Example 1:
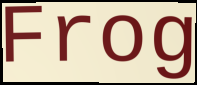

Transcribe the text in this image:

Frog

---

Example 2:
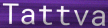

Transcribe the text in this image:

Tattva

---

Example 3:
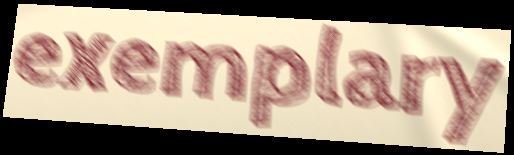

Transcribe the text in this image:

exemplary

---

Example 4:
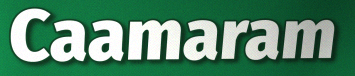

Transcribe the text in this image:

Caamaram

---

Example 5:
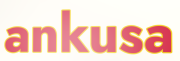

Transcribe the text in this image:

ankusa